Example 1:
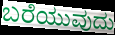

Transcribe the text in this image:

ಬರೆಯುವುದು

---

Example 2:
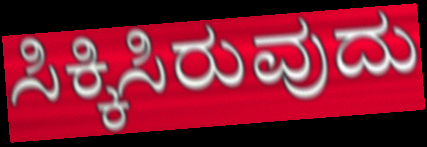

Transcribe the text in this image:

ಸಿಕ್ಕಿಸಿರುವುದು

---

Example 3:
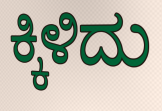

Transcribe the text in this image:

ಕ್ಕಿಳಿದು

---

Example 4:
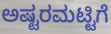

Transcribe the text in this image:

ಅಷ್ಟರಮಟ್ಟಿಗೆ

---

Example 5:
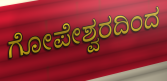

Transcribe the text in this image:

ಗೋಪೇಶ್ವರದಿಂದ